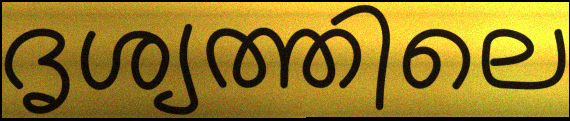
ദൃശ്യത്തിലെ